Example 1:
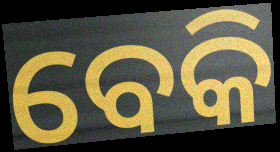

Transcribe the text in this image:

ବେକି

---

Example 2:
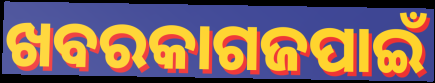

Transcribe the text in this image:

ଖବରକାଗଜପାଇଁ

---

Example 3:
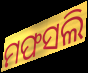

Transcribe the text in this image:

ମଫସଲି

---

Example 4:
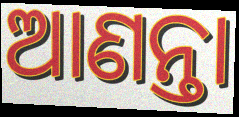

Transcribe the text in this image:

ଆଣନ୍ତା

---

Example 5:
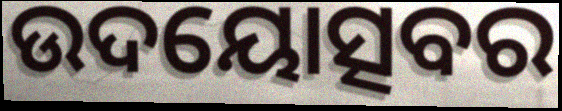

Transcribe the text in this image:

ଉଦୟୋତ୍ସବର